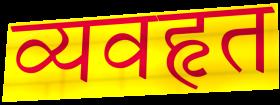
व्यवहृत